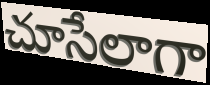
చూసేలాగా